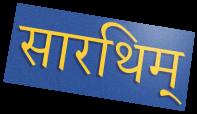
सारथिम्